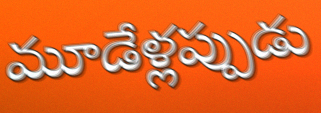
మూడేళ్లప్పుడు